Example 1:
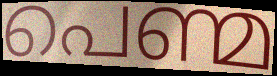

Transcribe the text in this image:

പെണ്മ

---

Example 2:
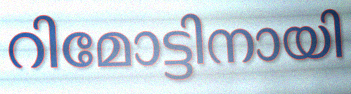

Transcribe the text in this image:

റിമോട്ടിനായി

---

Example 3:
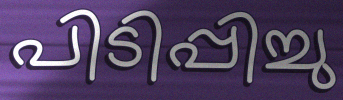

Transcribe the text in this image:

പിടിപ്പിച്ചു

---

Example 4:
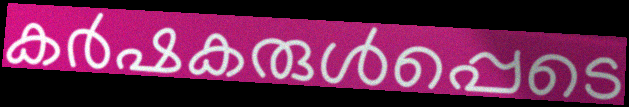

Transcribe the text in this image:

കർഷകരുൾപ്പെടെ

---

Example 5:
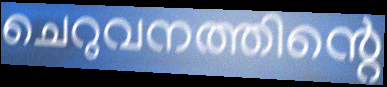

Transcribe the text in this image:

ചെറുവനത്തിന്റെ